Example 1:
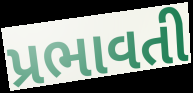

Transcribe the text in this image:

પ્રભાવતી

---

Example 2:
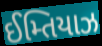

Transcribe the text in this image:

ઈમ્તિયાઝ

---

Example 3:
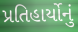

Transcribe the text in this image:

પ્રતિહાર્યોનું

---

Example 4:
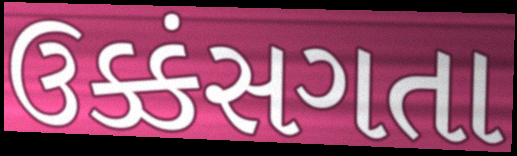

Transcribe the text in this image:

ઉક્કંસગતા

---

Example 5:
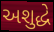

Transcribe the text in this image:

અશુદ્ધે